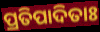
ପ୍ରତିପାଦିତାଃ